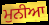
ਮੁਨੀਆ